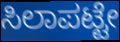
ಸಿಲಾಪಟ್ಟೇ